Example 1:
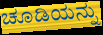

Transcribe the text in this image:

ಚೂಡಿಯನ್ನು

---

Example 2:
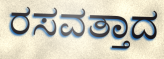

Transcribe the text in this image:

ರಸವತ್ತಾದ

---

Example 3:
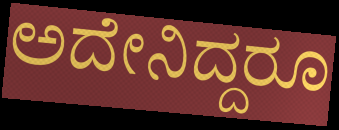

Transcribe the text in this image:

ಅದೇನಿದ್ದರೂ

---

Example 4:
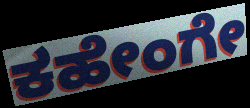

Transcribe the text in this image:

ಕಹೇಂಗೇ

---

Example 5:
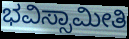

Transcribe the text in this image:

ಭವಿಸ್ಸಾಮೀತಿ